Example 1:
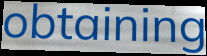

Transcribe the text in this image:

obtaining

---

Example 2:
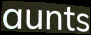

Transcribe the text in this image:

aunts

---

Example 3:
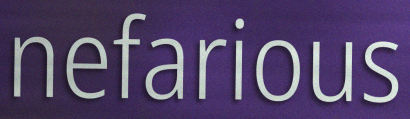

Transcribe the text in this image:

nefarious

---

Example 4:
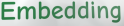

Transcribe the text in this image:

Embedding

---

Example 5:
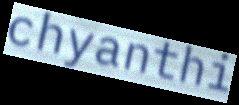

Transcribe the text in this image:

chyanthi